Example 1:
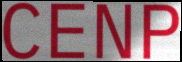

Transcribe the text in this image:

CENP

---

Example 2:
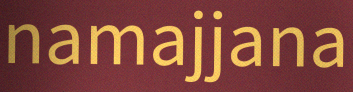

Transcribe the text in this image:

namajjana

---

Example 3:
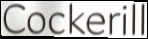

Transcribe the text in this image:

Cockerill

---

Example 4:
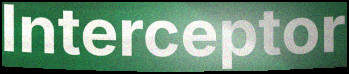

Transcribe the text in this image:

Interceptor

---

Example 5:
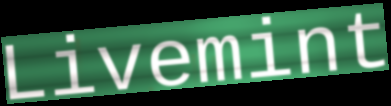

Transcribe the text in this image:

Livemint